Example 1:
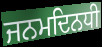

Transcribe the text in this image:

ਜਨਮਦਿਨਧੀ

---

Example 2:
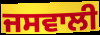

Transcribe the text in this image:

ਜਸਵਾਲੀ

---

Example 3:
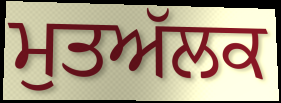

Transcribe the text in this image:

ਮੁਤਅੱਲਕ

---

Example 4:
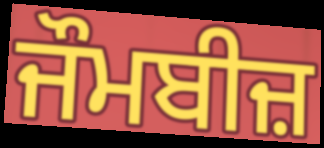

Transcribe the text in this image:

ਜੌਮਬੀਜ਼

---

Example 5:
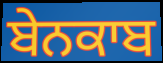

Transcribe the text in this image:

ਬੇਨਕਾਬ